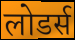
लोडर्स